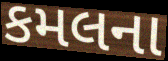
કમલના